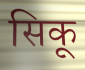
सिकू